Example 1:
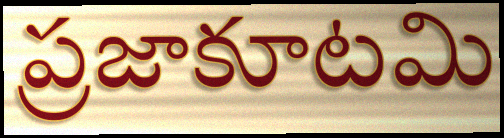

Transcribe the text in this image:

ప్రజాకూటమి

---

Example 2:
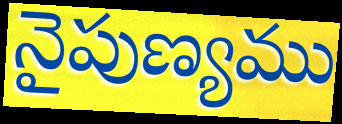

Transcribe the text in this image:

నైపుణ్యము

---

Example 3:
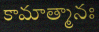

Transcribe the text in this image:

కామాత్మానః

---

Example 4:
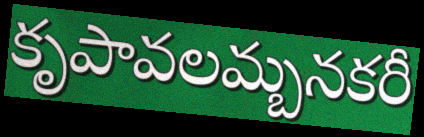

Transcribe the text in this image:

కృపావలమ్బనకరీ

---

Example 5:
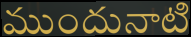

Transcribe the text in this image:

ముందునాటి